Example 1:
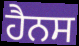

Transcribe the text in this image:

ਹੈਨਸ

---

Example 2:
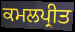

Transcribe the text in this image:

ਕਮਲਪ੍ਰੀਤ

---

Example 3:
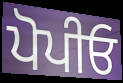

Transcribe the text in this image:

ਪੋਪੀਓ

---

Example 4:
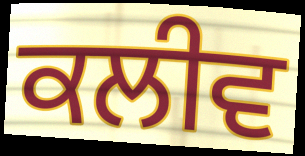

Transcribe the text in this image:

ਕਲੀਵ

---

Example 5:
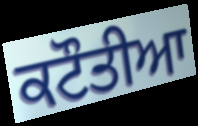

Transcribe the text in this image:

ਕਟੌਤੀਆ